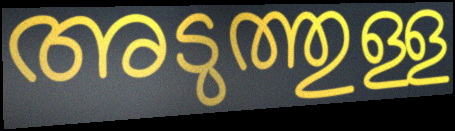
അടുത്തുള്ള